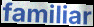
familiar